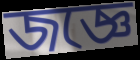
জজ্ঞে